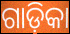
ଗାଡ଼ିକା